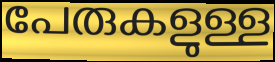
പേരുകളുള്ള